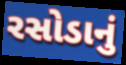
રસોડાનું